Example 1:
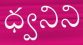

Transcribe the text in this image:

ధ్వనిని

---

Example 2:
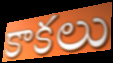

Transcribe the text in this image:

కాకలు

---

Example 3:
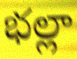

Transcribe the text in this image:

భల్లా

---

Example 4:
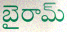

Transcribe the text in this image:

బైరామ్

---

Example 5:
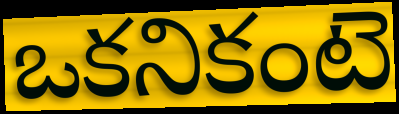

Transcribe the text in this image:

ఒకనికంటె